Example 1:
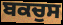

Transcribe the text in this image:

ਬਕਚੁਸ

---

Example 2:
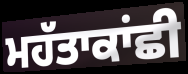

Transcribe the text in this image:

ਮਹੱਤਾਕਾਂਛੀ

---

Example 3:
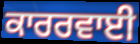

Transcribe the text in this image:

ਕਾਰਰਵਾਈ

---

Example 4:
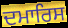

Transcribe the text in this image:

ਦਮਾਰਿਸ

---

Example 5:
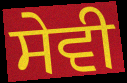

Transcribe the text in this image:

ਸੇਵੀ